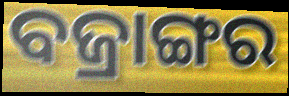
ବଜ୍ରାଙ୍ଗର